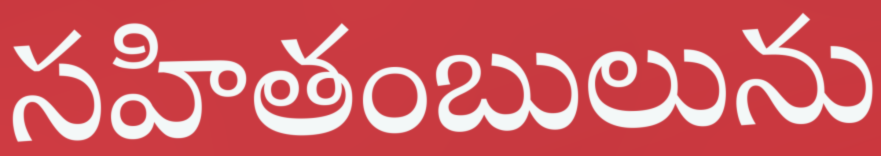
సహితంబులును